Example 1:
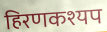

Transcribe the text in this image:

हिरणकश्यप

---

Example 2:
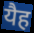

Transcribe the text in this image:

यैह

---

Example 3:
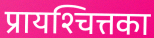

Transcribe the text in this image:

प्रायश्चित्तका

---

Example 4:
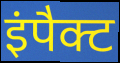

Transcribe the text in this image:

इंपैक्ट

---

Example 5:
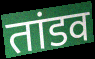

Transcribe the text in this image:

तांडव